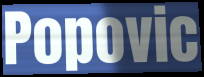
Popovic